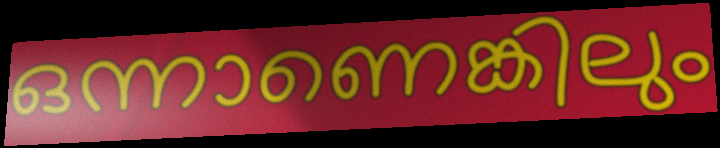
ഒന്നാണെങ്കിലും